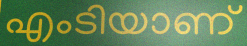
എംടിയാണ്